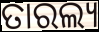
ତାରଲ୍ୟ